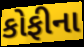
કોફીના